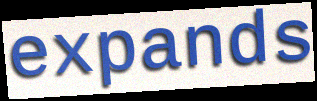
expands